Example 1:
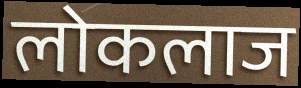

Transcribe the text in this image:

लोकलाज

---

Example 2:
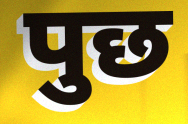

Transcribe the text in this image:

पुछ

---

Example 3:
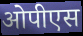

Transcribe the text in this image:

ओपीएस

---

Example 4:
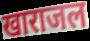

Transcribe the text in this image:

खाराजल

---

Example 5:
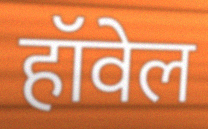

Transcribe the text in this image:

हॉवेल